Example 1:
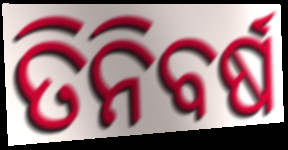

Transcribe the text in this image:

ତିନିବର୍ଷ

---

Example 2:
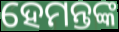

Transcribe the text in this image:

ହେମନ୍ତଙ୍କ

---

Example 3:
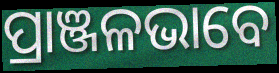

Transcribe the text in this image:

ପ୍ରାଞ୍ଜଳଭାବେ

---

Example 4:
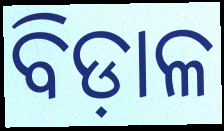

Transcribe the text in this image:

ବିଡ଼ାଳ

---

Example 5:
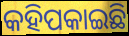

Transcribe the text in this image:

କହିପକାଇଛି